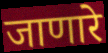
जाणारे